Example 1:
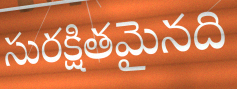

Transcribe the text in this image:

సురక్షితమైనది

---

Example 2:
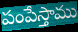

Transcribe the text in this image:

పంపేస్తాము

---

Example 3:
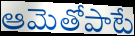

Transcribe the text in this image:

ఆమెతోపాటే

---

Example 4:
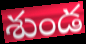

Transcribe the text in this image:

శుండ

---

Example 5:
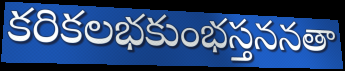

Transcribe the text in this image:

కరికలభకుంభస్తననతా